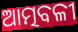
ଆତ୍ମବଳୀ